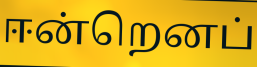
ஈன்றெனப்